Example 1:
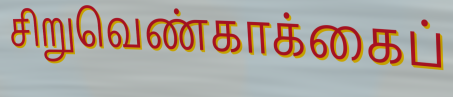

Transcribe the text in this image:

சிறுவெண்காக்கைப்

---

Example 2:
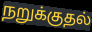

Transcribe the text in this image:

நறுக்குதல்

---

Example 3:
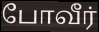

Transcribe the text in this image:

போவீர்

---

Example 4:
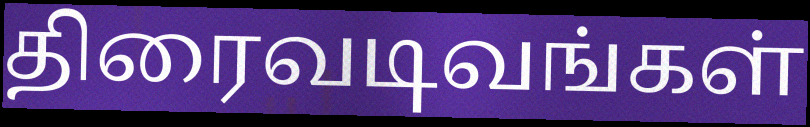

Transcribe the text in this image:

திரைவடிவங்கள்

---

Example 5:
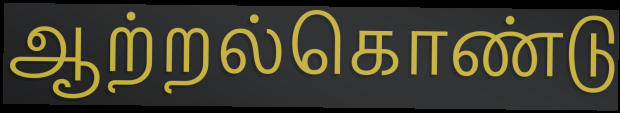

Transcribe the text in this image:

ஆற்றல்கொண்டு